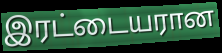
இரட்டையரான